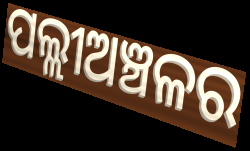
ପଲ୍ଲୀଅଞ୍ଚଳର